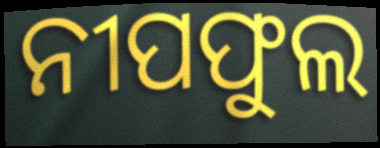
ନୀପଫୁଲ